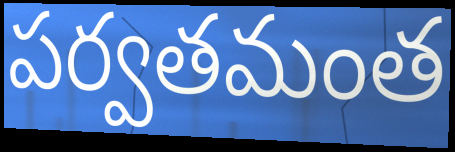
పర్వతమంత